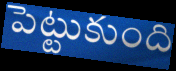
పెట్టుకుంది